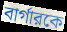
বার্গারকে